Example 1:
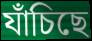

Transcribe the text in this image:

যাঁচিছে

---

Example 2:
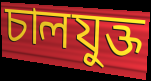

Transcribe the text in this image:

চালযুক্ত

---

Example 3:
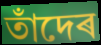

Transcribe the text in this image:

তাঁদেৰ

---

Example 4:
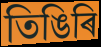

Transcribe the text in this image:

তিঙিৰি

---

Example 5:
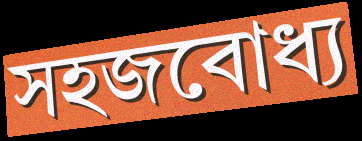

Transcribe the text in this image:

সহজবোধ্য